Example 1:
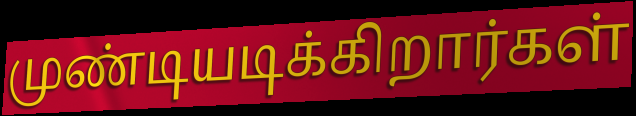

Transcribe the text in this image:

முண்டியடிக்கிறார்கள்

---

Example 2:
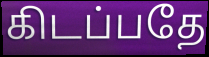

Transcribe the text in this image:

கிடப்பதே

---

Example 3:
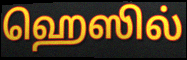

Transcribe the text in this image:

ஹெஸில்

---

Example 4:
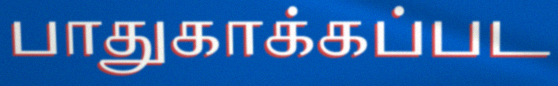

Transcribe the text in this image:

பாதுகாக்கப்பட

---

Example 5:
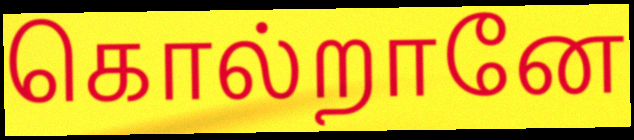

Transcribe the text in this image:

கொல்றானே